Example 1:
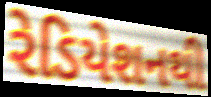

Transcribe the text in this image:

રેડિયેશનથી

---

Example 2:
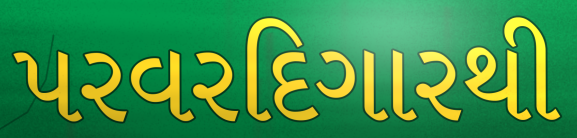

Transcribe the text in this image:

પરવરદિગારથી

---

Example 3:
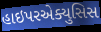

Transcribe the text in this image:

હાઇપરએક્યુસિસ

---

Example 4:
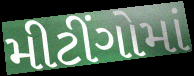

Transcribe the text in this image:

મીટીંગોમાં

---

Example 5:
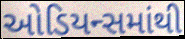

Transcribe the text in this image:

ઓડિયન્સમાંથી